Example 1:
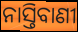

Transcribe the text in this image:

ନାସ୍ତିବାଣୀ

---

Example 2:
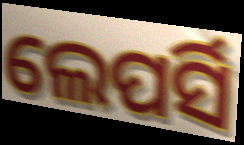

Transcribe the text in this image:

ଲେପର୍ସି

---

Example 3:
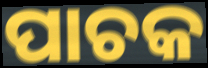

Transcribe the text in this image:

ପାଚକ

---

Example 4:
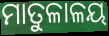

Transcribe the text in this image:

ମାତୁଳାଳୟ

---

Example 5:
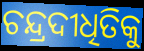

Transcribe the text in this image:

ଚନ୍ଦ୍ରଦୀଧିତିକୁ